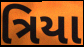
ત્રિયા